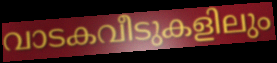
വാടകവീടുകളിലും